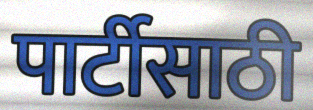
पार्टीसाठी